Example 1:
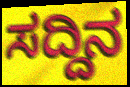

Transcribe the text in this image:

ಸದ್ದಿನ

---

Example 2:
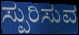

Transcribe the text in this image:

ಸ್ಪುರಿಸುವ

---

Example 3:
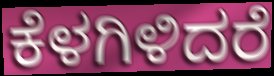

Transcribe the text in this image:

ಕೆಳಗಿಳಿದರೆ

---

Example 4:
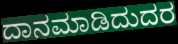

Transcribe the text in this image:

ದಾನಮಾಡಿದುದರ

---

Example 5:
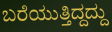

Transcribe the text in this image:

ಬರೆಯುತ್ತಿದ್ದದ್ದು